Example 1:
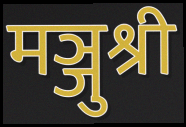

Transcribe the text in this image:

मञ्जुश्री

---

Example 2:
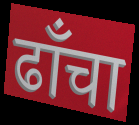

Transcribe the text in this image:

ढाँचा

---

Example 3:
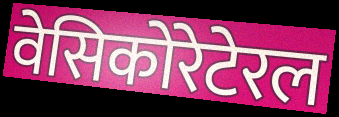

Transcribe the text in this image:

वेसिकोरेटेरल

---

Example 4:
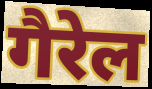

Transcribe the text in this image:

गैरेल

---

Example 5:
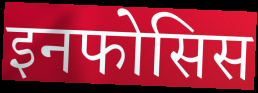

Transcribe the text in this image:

इनफोसिस